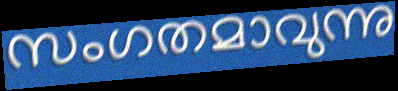
സംഗതമാവുന്നു